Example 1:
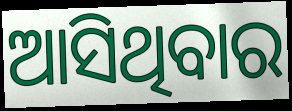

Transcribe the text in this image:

ଆସିଥିବାର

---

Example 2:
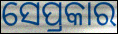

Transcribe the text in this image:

ସେପ୍ରକାର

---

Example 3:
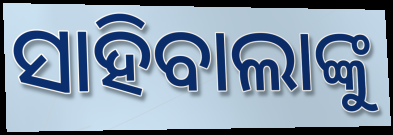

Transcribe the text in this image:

ସାହିବାଲାଙ୍କୁ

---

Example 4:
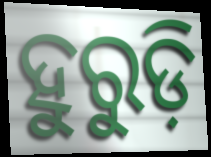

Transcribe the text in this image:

ହୁରୁଡ଼ି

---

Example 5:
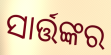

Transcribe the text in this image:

ସାର୍ତ୍ତଙ୍କର